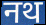
नथ